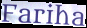
Fariha